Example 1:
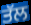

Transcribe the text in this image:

ਤੱਲ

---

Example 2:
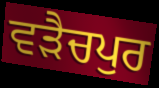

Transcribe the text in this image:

ਵੜੈਚਪੁਰ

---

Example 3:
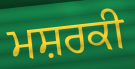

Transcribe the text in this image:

ਮਸ਼ਰਕੀ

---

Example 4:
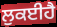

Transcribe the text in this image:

ਲੁਕਈਹੈ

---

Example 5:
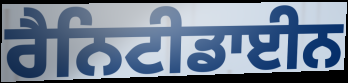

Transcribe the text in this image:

ਰੈਨਿਟੀਡਾਈਨ